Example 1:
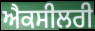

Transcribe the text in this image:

ਐਕਸੀਲਰੀ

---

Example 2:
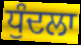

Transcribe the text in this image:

ਧੁੰਦਲਾ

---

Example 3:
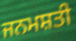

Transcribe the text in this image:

ਜਨਮਸ਼ਤੀ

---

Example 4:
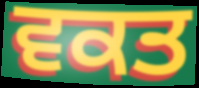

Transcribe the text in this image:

ਵਕਤ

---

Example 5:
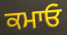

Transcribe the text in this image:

ਕਮਾਓ